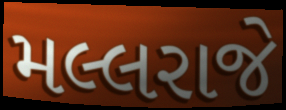
મલ્લરાજે